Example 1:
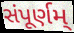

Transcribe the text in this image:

સંપૂર્ણમ્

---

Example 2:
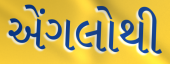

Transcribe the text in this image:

એંગલોથી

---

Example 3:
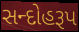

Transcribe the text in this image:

સન્દોહરૂપ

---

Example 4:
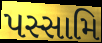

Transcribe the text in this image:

પસ્સામિ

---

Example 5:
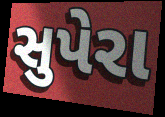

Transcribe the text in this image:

સુપેરા